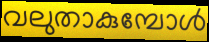
വലുതാകുമ്പോൾ